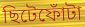
ছিটেফোঁটা